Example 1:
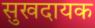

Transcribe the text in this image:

सुखदायक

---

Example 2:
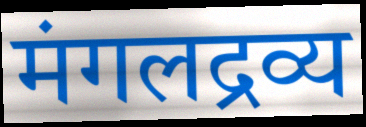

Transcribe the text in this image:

मंगलद्रव्य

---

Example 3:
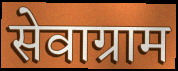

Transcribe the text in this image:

सेवाग्राम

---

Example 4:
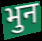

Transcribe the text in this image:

भुन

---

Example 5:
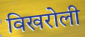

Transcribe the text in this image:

विखरोली